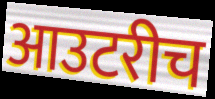
आउटरीच